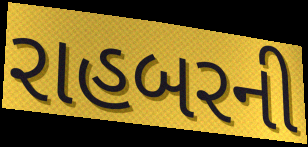
રાહબરની